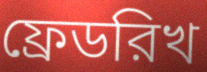
ফ্রেডরিখ